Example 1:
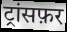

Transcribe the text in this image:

ट्रांसफ़र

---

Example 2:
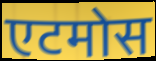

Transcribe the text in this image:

एटमोस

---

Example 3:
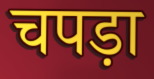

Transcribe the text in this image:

चपड़ा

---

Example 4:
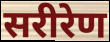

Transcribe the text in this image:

सरीरेण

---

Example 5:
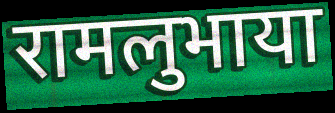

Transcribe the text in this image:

रामलुभाया